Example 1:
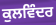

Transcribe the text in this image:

ਕੁਲਵਿੰਦਰ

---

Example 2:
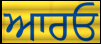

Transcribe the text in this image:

ਆਰਓ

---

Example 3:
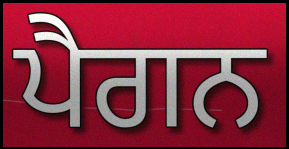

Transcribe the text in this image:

ਪੈਗਨ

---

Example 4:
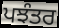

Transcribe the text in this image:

ਪਝੰਤਰ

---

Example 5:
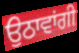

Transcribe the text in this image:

ਉਠਾਵਾਂਗੀ